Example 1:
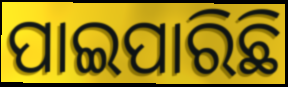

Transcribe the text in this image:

ପାଇପାରିଛି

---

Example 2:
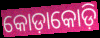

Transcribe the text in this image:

କୋଡ଼ାକୋଡ଼ି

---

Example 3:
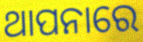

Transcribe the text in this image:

ଥାପନାରେ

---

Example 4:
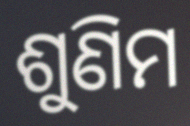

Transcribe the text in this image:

ଶୁଣିମ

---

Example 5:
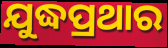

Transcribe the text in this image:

ଯୁଦ୍ଧପ୍ରଥାର